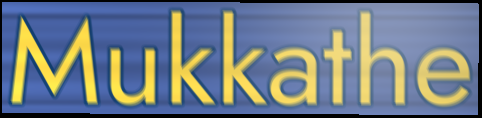
Mukkathe